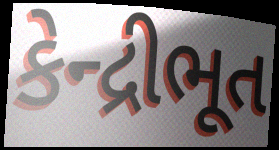
કેન્દ્રીભૂત